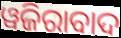
ୱଜିରାବାଦ